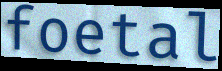
foetal